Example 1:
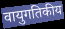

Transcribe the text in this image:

वायुगतिकीय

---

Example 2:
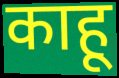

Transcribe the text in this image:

काहू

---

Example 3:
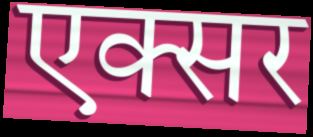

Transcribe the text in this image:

एक्सर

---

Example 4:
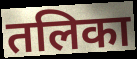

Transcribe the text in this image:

तलिका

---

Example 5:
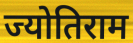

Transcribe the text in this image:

ज्योतिराम